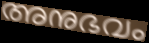
അനുഭവം